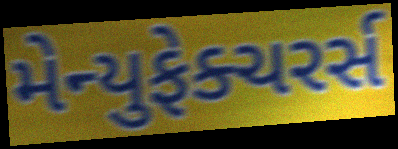
મેન્યુફેક્ચરર્સ